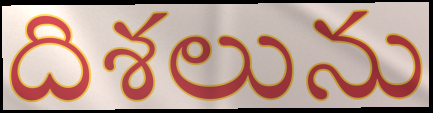
దిశలును